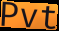
Pvt